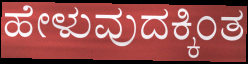
ಹೇಳುವುದಕ್ಕಿಂತ